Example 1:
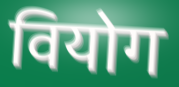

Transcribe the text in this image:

वियोग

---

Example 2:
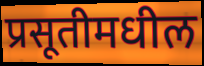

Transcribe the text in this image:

प्रसूतीमधील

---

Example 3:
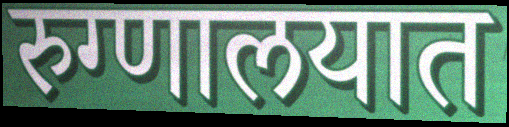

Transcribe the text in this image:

रुग्णालयात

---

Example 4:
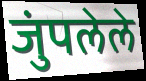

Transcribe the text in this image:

जुंपलेले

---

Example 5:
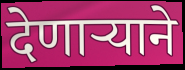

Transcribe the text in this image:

देणार्‍याने